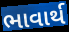
ભાવાર્થ